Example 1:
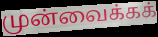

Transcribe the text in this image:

முன்வைக்கக்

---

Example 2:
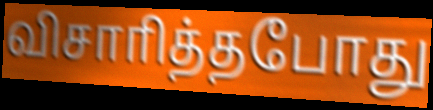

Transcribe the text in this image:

விசாரித்தபோது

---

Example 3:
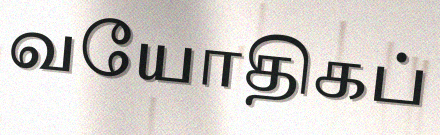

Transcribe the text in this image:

வயோதிகப்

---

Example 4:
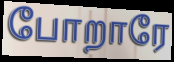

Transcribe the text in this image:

போறாரே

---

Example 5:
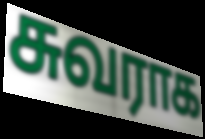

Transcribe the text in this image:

சுவராக